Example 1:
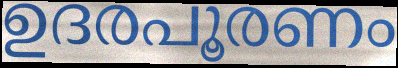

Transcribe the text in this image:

ഉദരപൂരണം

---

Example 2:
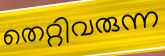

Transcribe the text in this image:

തെറ്റിവരുന്ന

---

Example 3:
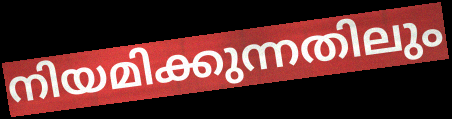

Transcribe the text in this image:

നിയമിക്കുന്നതിലും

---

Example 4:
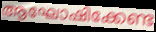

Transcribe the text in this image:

ആഘോഷിക്കേണ്ട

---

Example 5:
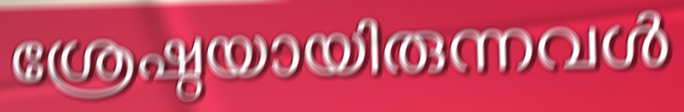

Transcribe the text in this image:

ശ്രേഷ്ഠയായിരുന്നവൾ